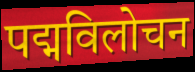
पद्मविलोचन